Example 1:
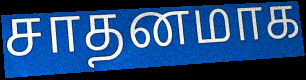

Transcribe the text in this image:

சாதனமாக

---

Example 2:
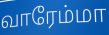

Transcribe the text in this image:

வாரேம்மா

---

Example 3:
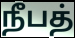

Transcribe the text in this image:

நீபத்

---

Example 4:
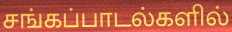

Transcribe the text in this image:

சங்கப்பாடல்களில்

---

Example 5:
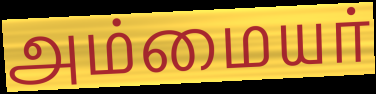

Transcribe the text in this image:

அம்மையர்